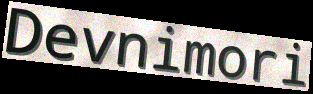
Devnimori